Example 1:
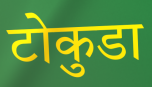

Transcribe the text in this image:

टोकुडा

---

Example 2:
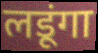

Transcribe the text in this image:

लडूंगा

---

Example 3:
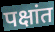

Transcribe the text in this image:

पक्षांत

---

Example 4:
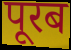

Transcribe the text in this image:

पूरब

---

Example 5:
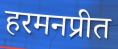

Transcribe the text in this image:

हरमनप्रीत